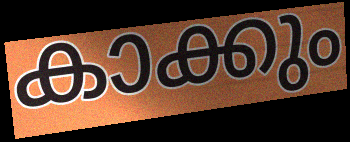
കാക്കും